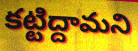
కట్టిద్దామని